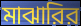
মাঝারির